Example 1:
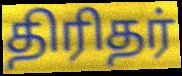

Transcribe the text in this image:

திரிதர்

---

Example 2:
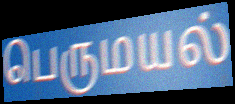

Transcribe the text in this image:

பெருமயல்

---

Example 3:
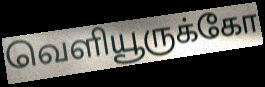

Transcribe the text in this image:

வெளியூருக்கோ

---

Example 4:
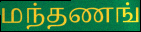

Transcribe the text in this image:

மந்தணங்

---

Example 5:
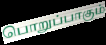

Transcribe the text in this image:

பொறுப்பாகும்